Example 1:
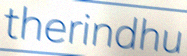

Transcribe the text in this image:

therindhu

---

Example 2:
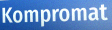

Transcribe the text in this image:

Kompromat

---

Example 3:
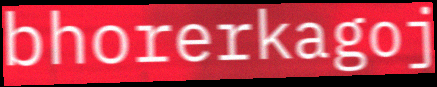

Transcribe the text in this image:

bhorerkagoj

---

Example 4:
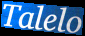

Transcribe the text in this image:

Talelo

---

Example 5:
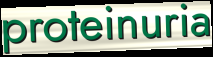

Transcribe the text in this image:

proteinuria